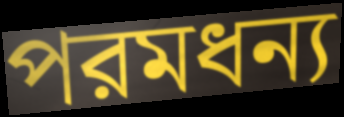
পরমধন্য